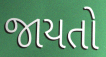
જાયતો